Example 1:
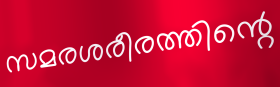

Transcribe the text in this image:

സമരശരീരത്തിന്റെ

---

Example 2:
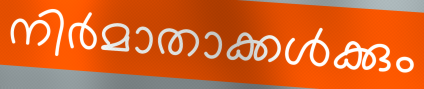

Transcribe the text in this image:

നിർമാതാക്കൾക്കും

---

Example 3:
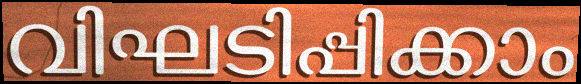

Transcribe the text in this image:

വിഘടിപ്പിക്കാം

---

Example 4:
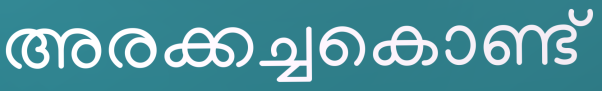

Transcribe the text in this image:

അരക്കച്ചകൊണ്ട്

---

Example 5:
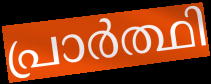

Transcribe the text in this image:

പ്രാർത്ഥി